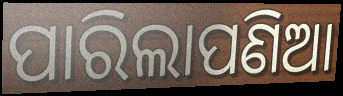
ପାରିଲାପଣିଆ